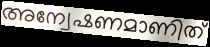
അന്വേഷണമാണിത്